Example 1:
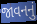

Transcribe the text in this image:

જાવનનું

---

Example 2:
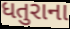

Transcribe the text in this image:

ધતુરાના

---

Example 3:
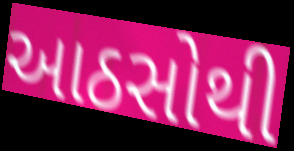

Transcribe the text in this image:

આઠસોથી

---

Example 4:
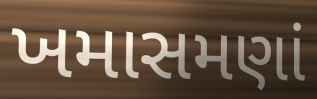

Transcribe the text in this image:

ખમાસમણાં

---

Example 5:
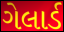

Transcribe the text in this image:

ગેલાર્ડ